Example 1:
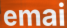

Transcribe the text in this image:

emai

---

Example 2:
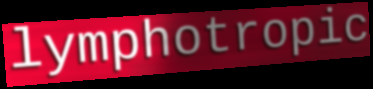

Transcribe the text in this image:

lymphotropic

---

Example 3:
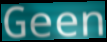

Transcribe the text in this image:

Geen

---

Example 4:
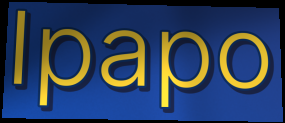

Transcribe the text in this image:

Ipapo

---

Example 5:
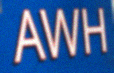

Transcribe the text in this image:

AWH